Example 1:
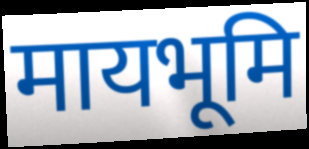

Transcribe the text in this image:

मायभूमि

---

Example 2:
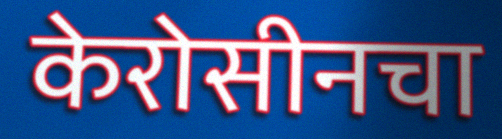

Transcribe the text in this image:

केरोसीनचा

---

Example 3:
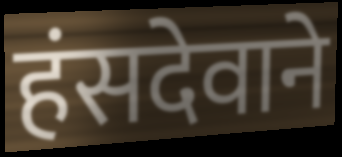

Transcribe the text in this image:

हंसदेवाने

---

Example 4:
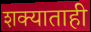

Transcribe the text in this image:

शक्याताही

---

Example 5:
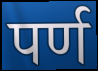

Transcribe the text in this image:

पर्ण